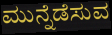
ಮುನ್ನೆಡೆಸುವ